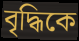
বৃদ্ধিকে